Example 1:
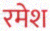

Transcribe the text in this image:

रमेश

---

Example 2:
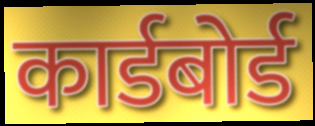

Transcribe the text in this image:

कार्डबोर्ड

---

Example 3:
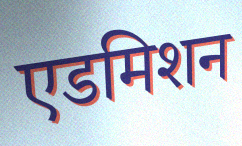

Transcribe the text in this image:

एडमिशन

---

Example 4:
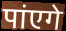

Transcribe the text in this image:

पांएगे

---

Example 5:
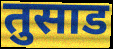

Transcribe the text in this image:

तुसाड